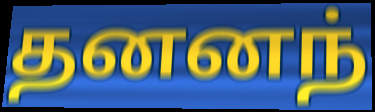
தனனந்